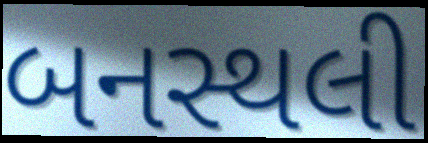
બનસ્થલી